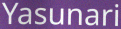
Yasunari